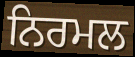
ਨਿਰਮਲ